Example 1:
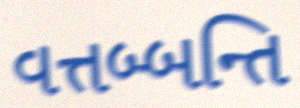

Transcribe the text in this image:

વત્તબ્બન્તિ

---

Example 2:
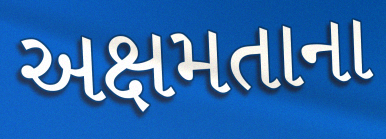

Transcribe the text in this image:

અક્ષમતાના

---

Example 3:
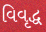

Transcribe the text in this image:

વિવૃદ્ધ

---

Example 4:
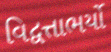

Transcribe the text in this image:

વિદ્વત્તાભર્યો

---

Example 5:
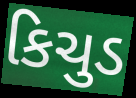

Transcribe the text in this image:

કિચુડ